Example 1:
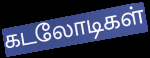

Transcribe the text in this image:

கடலோடிகள்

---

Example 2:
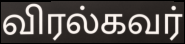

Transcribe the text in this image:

விரல்கவர்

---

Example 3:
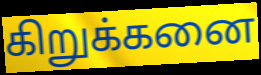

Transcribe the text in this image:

கிறுக்கனை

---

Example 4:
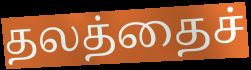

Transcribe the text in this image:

தலத்தைச்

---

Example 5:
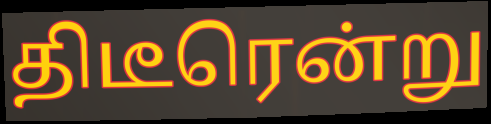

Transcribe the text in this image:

திடீரென்று